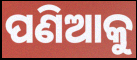
ପଣିଆକୁ